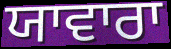
ਯਾਵਾਰਾ